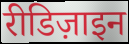
रीडिज़ाइन